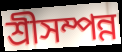
শ্রীসম্পন্ন